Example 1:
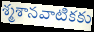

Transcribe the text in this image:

శ్మశానవాటికకు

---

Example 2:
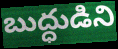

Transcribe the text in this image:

బుద్ధుడిని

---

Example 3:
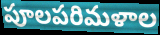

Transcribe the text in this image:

పూలపరిమళాల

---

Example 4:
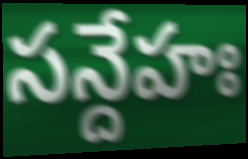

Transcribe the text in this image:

సన్దేహః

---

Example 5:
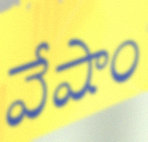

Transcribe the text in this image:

వేషాం